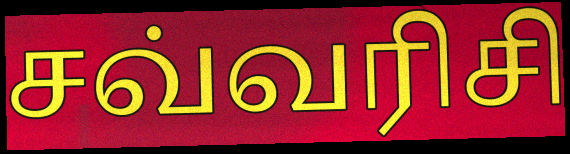
சவ்வரிசி